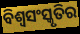
ବିଶ୍ୱସଂସ୍କୃତିର